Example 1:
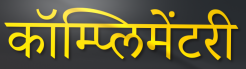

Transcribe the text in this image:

कॉम्प्लिमेंटरी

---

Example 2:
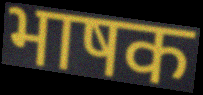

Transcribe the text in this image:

भाषक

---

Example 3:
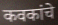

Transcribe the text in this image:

कवकांचे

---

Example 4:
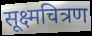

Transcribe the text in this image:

सूक्ष्मचित्रण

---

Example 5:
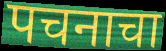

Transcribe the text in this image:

पचनाचा